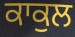
ਕਾਕੁਲ